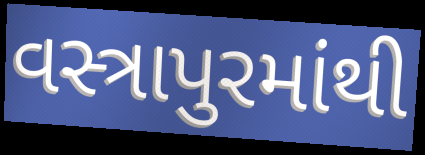
વસ્ત્રાપુરમાંથી